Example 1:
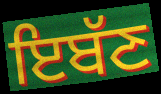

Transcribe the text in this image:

ਇਬੱਣ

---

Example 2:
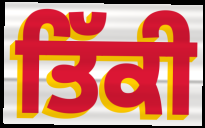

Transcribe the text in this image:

ਤਿੱਕੀ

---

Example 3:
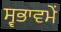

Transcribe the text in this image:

ਸ੍ਵਭਾਵਮੇਂ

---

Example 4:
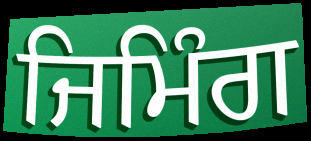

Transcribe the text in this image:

ਜਿਮਿੰਗ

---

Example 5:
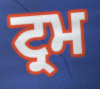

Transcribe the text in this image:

ਟ੍ਰਮ